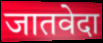
जातवेदा